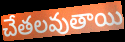
చేతలవుతాయి